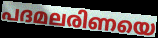
പദമലരിണയെ